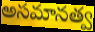
అసమానత్వ